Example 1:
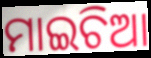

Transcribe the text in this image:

ମାଇଚିଆ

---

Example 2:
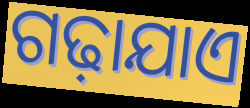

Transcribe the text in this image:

ଗଢ଼ାଯାଏ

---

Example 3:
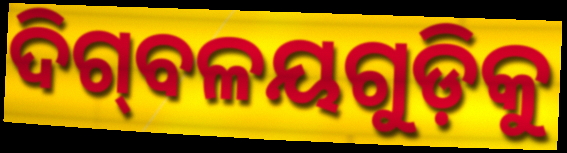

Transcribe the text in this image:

ଦିଗ୍‌ବଳୟଗୁଡ଼ିକୁ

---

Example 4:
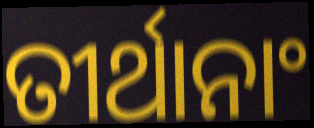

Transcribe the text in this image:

ତୀର୍ଥାନାଂ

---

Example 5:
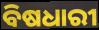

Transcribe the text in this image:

ବିଷଧାରୀ